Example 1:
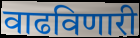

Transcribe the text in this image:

वाढविणारी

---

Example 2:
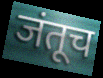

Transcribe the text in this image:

जंतूच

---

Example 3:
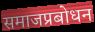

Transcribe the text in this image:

समाजप्रबोधन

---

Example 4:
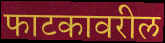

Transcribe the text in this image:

फाटकावरील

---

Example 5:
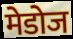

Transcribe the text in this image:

मेडोज